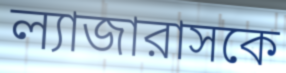
ল্যাজারাসকে